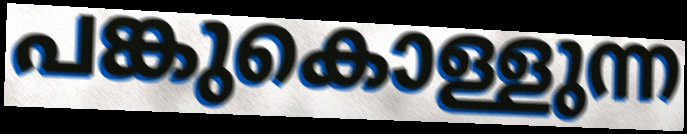
പങ്കുകൊള്ളുന്ന